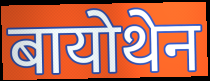
बायोथेन